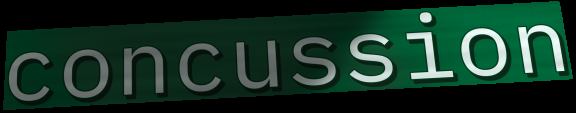
concussion